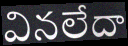
వినలేదా